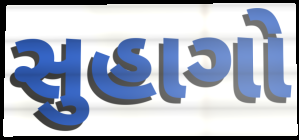
સુહાગો